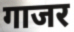
गाजर